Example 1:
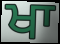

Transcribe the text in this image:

ਖਾ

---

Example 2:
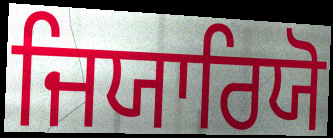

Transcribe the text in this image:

ਜਿਯਾਰਿਯੋ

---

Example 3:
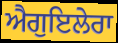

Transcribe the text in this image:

ਐਗੁਇਲੇਰਾ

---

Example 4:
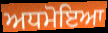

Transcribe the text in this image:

ਅਧਮੋਇਆ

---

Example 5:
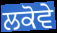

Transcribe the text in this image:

ਲਕੋਵੇ